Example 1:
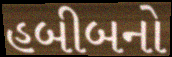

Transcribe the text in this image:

હબીબનો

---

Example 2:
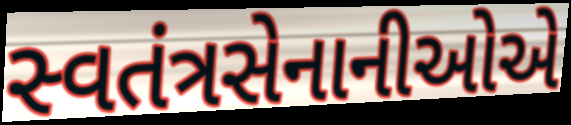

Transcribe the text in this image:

સ્વતંત્રસેનાનીઓએ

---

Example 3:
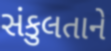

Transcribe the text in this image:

સંકુલતાને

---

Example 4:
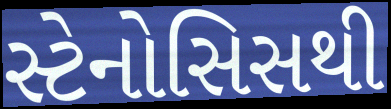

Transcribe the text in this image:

સ્ટેનોસિસથી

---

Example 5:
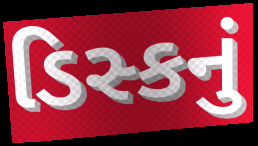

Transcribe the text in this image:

ડિસ્કનું